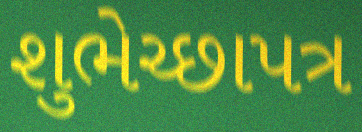
શુભેચ્છાપત્ર